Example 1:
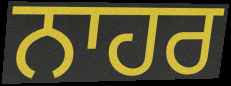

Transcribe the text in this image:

ਨਾਹਰ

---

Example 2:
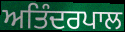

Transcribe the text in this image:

ਅਤਿੰਦਰਪਾਲ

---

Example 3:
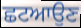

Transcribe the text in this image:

ਛਟਆਉਣ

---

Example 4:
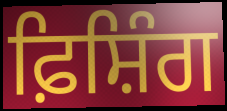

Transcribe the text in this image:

ਫ਼ਿਸ਼ਿੰਗ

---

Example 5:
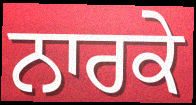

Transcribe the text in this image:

ਨਾਰਕੇ